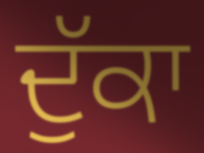
ਦੁੱਕਾ